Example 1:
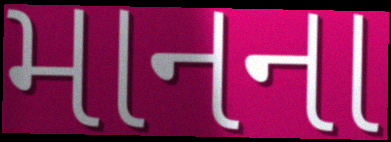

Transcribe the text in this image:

માનના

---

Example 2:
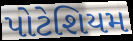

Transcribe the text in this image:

પોટેશિયમ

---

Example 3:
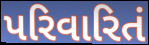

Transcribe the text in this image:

પરિવારિતં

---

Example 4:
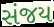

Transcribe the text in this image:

સંજય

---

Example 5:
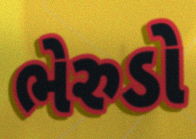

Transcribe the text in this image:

ભેરુડો